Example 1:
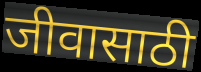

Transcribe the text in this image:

जीवासाठी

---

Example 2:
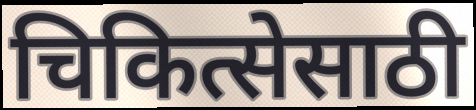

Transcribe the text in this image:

चिकित्सेसाठी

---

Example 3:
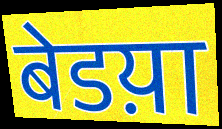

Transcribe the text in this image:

बेडय़ा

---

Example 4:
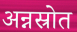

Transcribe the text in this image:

अन्नस्रोत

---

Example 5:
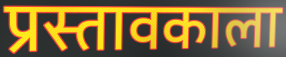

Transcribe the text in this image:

प्रस्तावकाला